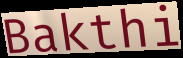
Bakthi